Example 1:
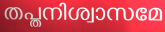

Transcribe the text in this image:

തപ്തനിശ്വാസമേ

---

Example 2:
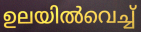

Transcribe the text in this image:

ഉലയിൽവെച്ച്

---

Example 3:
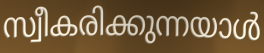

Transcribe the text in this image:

സ്വീകരിക്കുന്നയാൾ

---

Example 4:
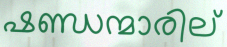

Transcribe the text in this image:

ഷണ്ഡന്മാരില്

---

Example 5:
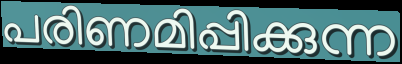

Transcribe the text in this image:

പരിണമിപ്പിക്കുന്ന